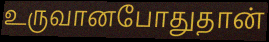
உருவானபோதுதான்